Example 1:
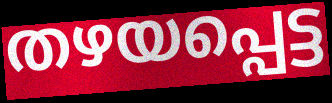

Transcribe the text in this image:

തഴയപ്പെട്ട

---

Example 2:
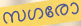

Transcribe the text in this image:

സഗരോ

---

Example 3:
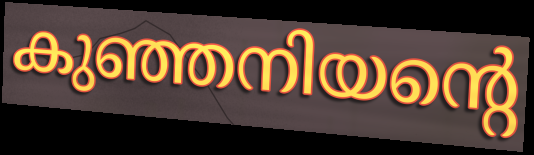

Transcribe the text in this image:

കുഞ്ഞനിയന്റെ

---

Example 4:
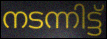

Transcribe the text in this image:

നടന്നിട്ട്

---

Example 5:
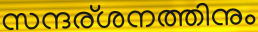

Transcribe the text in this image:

സന്ദര്ശനത്തിനും